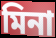
মিনা